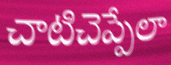
చాటిచెప్పేలా